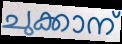
ചുക്കാന്